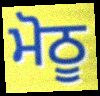
ਮੋਠੂ